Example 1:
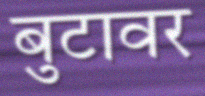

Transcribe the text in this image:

बुटावर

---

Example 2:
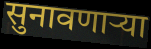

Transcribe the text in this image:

सुनावणाऱ्या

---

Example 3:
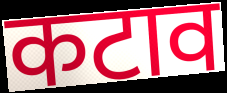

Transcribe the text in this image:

कटाव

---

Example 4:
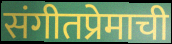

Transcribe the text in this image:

संगीतप्रेमाची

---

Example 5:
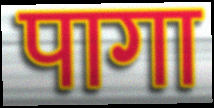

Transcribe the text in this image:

पागा